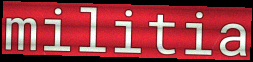
militia